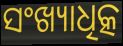
ସଂଖ୍ୟାଧିତ୍କ